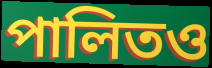
পালিতও